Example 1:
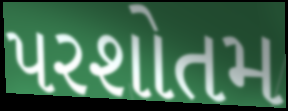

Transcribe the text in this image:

પરશોતમ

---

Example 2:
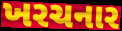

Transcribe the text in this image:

ખરચનાર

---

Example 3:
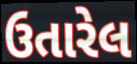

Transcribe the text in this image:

ઉતારેલ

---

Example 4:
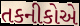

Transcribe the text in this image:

તકનીકોએ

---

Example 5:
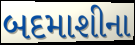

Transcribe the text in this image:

બદમાશીના